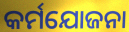
କର୍ମଯୋଜନା